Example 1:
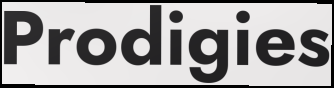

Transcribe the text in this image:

Prodigies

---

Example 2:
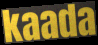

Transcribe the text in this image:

kaada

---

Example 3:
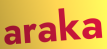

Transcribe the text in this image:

araka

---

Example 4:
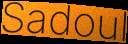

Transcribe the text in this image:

Sadoul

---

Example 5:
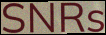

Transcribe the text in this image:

SNRs